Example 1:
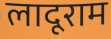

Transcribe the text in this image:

लादूराम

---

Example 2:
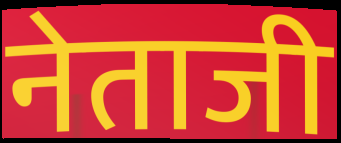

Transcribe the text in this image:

नेताजी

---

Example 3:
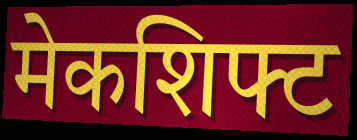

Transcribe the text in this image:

मेकशिफ्ट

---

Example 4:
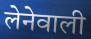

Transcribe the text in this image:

लेनेवाली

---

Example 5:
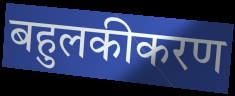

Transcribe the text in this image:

बहुलकीकरण